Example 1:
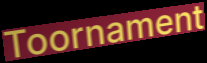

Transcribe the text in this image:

Toornament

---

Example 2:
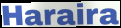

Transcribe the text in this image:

Haraira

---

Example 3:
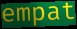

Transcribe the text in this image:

empat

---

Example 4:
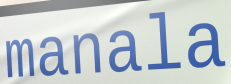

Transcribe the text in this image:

manala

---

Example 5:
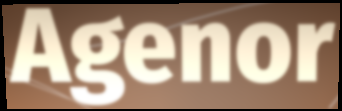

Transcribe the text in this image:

Agenor